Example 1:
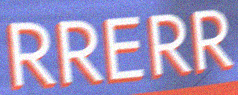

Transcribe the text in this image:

RRERR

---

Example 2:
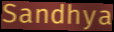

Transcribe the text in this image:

Sandhya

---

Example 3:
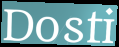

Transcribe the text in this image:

Dosti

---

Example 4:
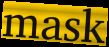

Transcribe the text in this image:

mask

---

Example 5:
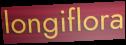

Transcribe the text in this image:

longiflora